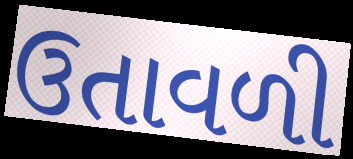
ઉતાવળી